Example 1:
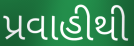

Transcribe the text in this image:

પ્રવાહીથી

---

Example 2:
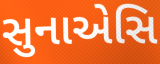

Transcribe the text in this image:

સુનાએસિ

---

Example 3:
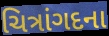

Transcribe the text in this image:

ચિત્રાંગદના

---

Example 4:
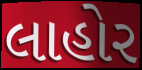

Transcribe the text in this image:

લાહોર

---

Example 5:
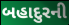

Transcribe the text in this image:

બહાદુરની